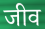
जीव